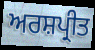
ਅਰਸ਼ਪ੍ਰੀਤ